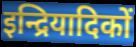
इन्द्रियादिकों